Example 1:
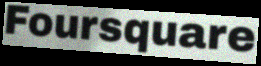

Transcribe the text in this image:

Foursquare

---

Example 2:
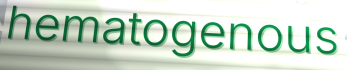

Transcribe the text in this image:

hematogenous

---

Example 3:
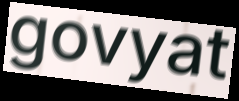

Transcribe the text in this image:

govyat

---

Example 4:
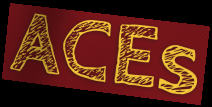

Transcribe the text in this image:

ACEs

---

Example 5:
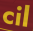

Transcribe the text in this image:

cil